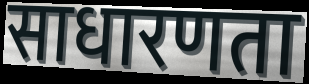
साधारणता